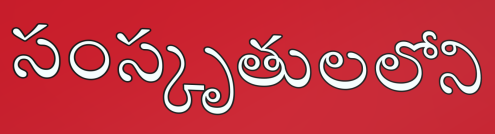
సంస్కృతులలోని